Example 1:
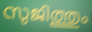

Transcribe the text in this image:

സുജിത്തും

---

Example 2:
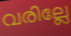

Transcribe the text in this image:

വരില്ലേ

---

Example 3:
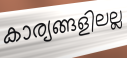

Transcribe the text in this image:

കാര്യങ്ങളിലല്ല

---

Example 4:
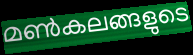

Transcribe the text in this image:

മൺകലങ്ങളുടെ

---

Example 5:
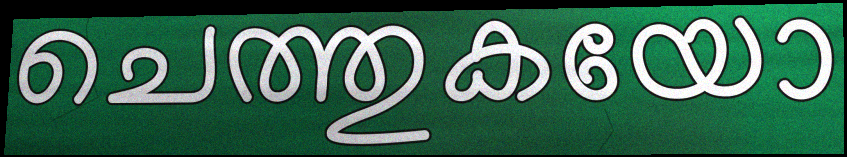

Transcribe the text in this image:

ചെത്തുകയോ